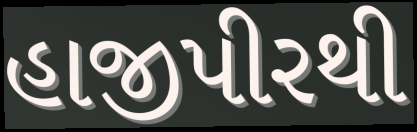
હાજીપીરથી